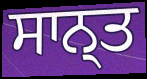
ਸਾਨ੍ਤ